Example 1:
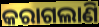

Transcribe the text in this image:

କରାଗଲାଣି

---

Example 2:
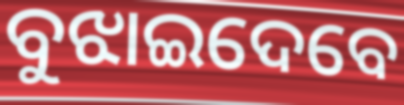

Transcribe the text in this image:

ବୁଝାଇଦେବେ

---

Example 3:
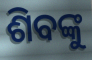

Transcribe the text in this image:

ଶିବଙ୍କୁ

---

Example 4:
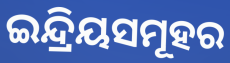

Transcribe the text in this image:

ଇନ୍ଦ୍ରିୟସମୂହର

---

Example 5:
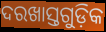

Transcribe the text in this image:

ଦରଖାସ୍ତଗୁଡ଼ିକ